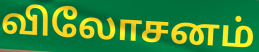
விலோசனம்